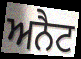
ਅਨੈਟ